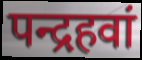
पन्द्रहवां